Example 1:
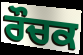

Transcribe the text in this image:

ਰੌਚਕ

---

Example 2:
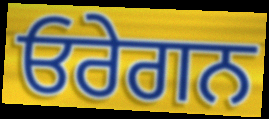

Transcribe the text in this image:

ਓਰੇਗਨ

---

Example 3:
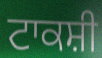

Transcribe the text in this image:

ਟਾਕਸ਼ੀ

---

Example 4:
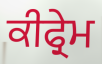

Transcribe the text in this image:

ਕੀਫ੍ਰੇਮ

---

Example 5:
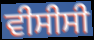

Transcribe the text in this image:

ਵੀਸੀਸੀ